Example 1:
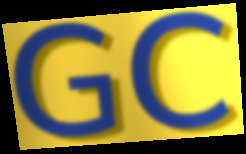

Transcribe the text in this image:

GC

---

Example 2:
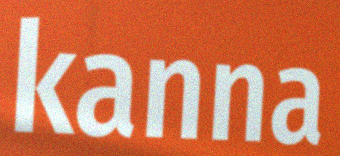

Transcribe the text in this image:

kanna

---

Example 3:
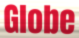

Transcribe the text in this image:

Globe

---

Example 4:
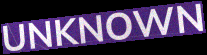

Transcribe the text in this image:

UNKNOWN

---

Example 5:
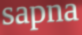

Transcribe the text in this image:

sapna